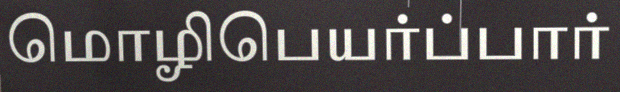
மொழிபெயர்ப்பார்